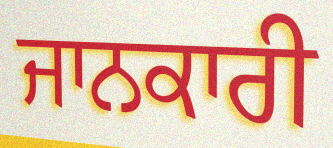
ਜਾਨਕਾਰੀ